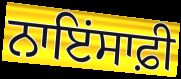
ਨਾਇਂਸਾਫ਼ੀ